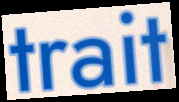
trait